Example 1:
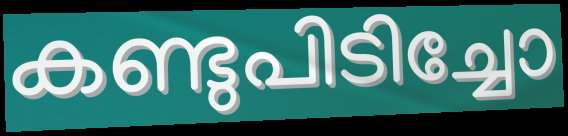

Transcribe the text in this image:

കണ്ടുപിടിച്ചോ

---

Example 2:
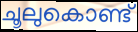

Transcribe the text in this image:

ചൂലുകൊണ്ട്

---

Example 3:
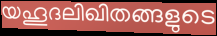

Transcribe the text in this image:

യഹൂദലിഖിതങ്ങളുടെ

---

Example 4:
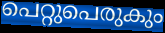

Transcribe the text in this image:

പെറ്റുപെരുകും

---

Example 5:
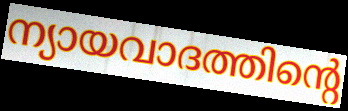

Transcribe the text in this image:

ന്യായവാദത്തിന്റെ